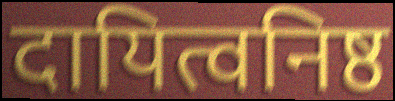
दायित्वनिष्ठ